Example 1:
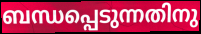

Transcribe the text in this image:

ബന്ധപ്പെടുന്നതിനു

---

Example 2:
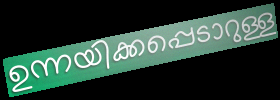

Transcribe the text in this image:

ഉന്നയിക്കപ്പെടാറുള്ള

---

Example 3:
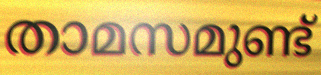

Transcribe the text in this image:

താമസമുണ്ട്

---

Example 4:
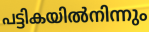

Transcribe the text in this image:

പട്ടികയിൽനിന്നും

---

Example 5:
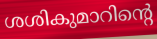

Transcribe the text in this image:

ശശികുമാറിന്റെ